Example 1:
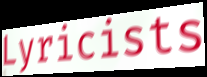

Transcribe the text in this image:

Lyricists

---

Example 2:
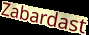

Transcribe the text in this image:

Zabardast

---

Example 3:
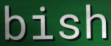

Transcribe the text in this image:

bish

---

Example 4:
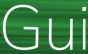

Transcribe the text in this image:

Gui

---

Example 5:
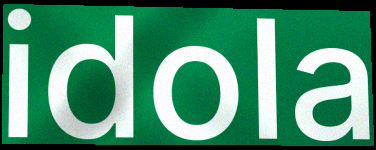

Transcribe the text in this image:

idola